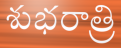
శుభరాత్రి